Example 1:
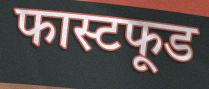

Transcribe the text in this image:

फास्टफूड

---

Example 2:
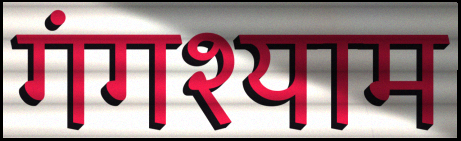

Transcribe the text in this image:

गंगश्याम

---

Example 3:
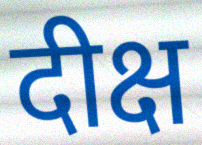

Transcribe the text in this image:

दीक्ष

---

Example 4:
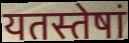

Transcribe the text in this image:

यतस्तेषां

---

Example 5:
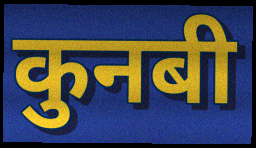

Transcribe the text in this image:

कुनबी